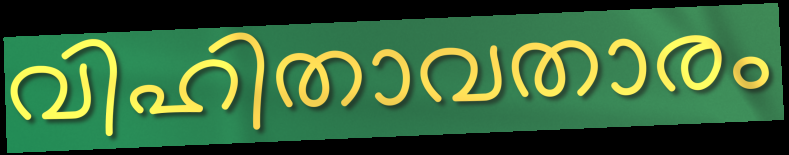
വിഹിതാവതാരം